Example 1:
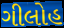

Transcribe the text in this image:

ગીલોહ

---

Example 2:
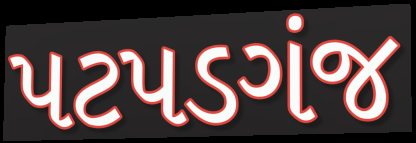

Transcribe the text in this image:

પટપડગંજ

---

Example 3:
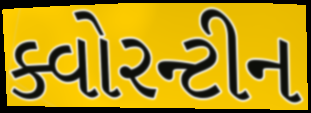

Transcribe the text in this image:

ક્વોરન્ટીન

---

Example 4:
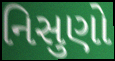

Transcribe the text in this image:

નિસુણો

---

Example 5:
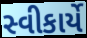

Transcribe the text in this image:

સ્વીકાર્યે